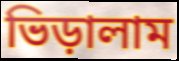
ভিড়ালাম